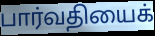
பார்வதியைக்